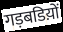
गड़बडिय़ों